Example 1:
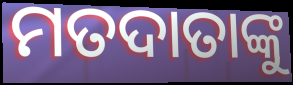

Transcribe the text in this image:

ମତଦାତାଙ୍କୁ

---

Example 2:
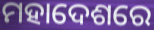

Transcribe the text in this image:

ମହାଦେଶରେ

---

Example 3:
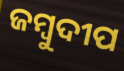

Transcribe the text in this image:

ଜମ୍ବୁଦୀପ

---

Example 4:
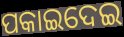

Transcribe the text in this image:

ପକାଇଦେଇ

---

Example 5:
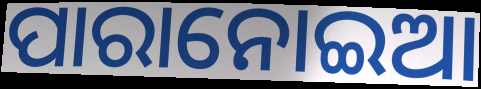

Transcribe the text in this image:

ପାରାନୋଇଆ